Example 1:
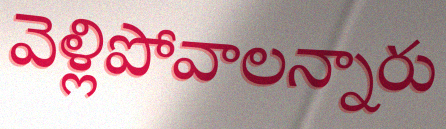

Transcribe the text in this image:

వెళ్లిపోవాలన్నారు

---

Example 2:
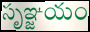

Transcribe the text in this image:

సృఞ్జయం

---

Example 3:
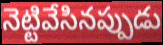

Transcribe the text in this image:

నెట్టివేసినప్పుడు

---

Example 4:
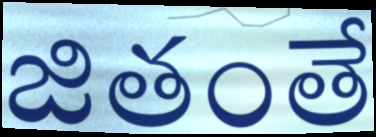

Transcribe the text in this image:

జితంతే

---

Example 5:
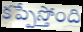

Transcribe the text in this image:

కప్పేస్తోంది